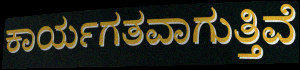
ಕಾರ್ಯಗತವಾಗುತ್ತಿವೆ